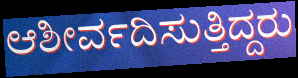
ಆಶೀರ್ವದಿಸುತ್ತಿದ್ದರು